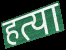
हत्‍या